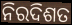
ନିରଦିଶତ